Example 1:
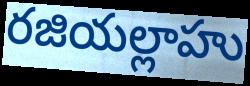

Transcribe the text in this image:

రజియల్లాహు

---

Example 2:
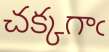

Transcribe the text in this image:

చక్కగాఁ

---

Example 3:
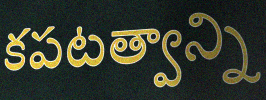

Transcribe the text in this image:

కపటత్వాన్ని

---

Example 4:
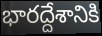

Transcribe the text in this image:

భారద్దేశానికి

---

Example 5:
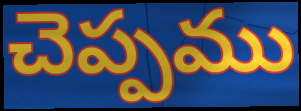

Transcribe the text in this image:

చెప్పము